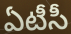
ఏటీసీ